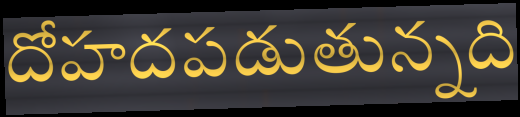
దోహదపడుతున్నది